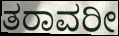
ತರಾವರೀ